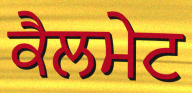
ਕੈਲਮੇਟ